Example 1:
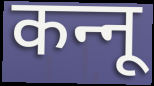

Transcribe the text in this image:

कन्नू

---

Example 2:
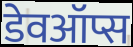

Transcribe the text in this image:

डेवऑप्स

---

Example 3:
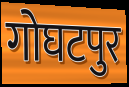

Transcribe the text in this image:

गोघटपुर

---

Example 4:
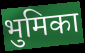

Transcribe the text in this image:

भुमिका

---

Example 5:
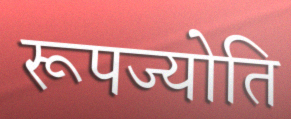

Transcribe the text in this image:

रूपज्योति